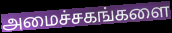
அமைச்சகங்களை